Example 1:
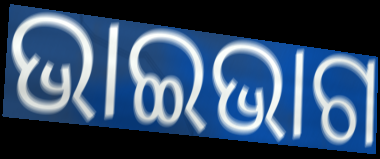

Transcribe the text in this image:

ଭାଇଭାଗ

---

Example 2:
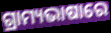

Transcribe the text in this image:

ଗ୍ରାମ୍ୟଭାଷାରେ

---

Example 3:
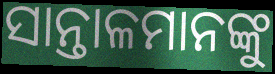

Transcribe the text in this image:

ସାନ୍ତାଳମାନଙ୍କୁ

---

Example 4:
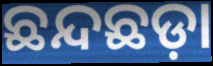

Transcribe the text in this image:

ଛନ୍ଦଛଡ଼ା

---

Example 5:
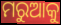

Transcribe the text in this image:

ମରୁଆକୁ